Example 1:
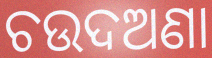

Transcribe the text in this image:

ଚଉଦଅଣା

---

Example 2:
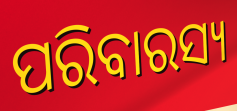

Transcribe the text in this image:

ପରିବାରସ୍ୟ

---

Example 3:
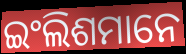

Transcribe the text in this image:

ଇଂଲିଶମାନେ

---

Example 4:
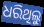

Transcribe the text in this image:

ଧରିଥିଲୁ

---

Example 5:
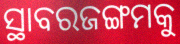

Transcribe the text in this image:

ସ୍ଥାବରଜଙ୍ଗମକୁ